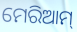
ମେରିଆମ୍